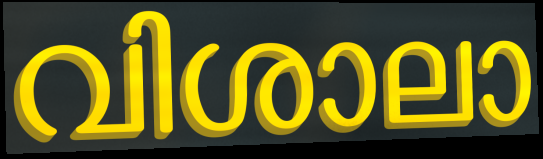
വിശാലാ